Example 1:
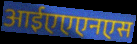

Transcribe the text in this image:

आईएएएनएस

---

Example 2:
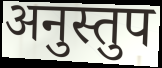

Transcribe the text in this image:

अनुस्तुप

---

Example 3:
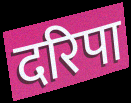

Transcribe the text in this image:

दरिपा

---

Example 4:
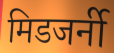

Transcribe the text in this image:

मिडजर्नी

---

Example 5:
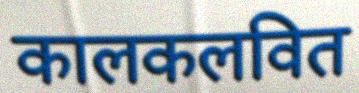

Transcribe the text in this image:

कालकलवित